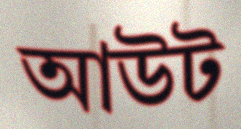
আউট